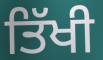
ਤਿੱਖੀ